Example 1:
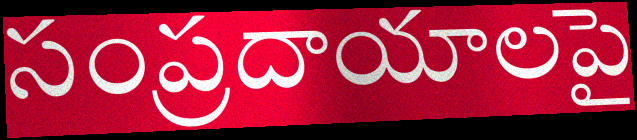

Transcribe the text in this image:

సంప్రదాయాలపై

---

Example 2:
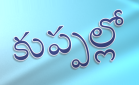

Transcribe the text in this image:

కుప్పల్లో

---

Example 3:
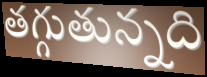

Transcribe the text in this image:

తగ్గుతున్నది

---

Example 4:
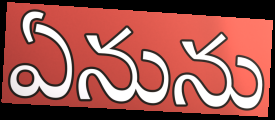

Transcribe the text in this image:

ఏనును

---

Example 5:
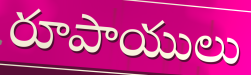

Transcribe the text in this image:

రూపాయులు